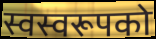
स्वस्वरूपको